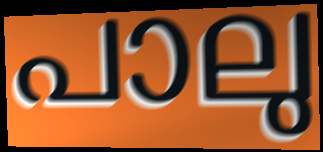
പാലു